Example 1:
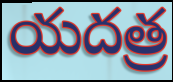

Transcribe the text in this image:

యదత్ర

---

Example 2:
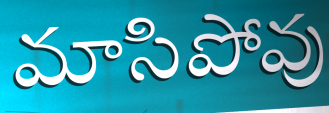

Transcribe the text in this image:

మాసిపోవు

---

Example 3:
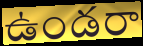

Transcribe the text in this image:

ఉండరా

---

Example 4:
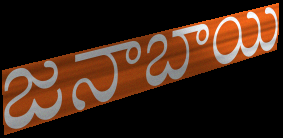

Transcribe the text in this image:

జనాబాయి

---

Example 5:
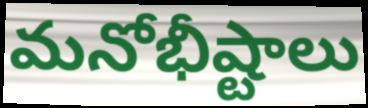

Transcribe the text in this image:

మనోభీష్టాలు